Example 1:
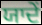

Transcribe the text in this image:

ਯਾਦੇਂ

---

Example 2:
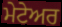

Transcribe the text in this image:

ਮੇਟੇਅਰ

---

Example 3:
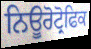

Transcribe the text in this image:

ਨਿਊਰੋਟ੍ਰੋਫਿਕ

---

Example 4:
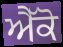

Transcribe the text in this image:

ਐੱਕੋ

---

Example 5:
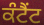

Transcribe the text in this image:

ਕੰਟੈਂਟ